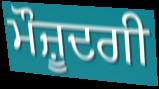
ਮੌਜ਼ੂਦਗੀ